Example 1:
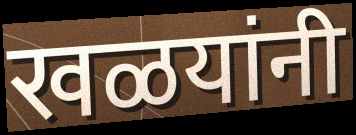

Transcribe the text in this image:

खळयांनी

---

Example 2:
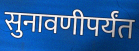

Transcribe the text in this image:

सुनावणीपर्यंत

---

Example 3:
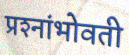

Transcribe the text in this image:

प्रश्नांभोवती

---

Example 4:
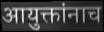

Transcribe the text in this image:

आयुक्तांनाच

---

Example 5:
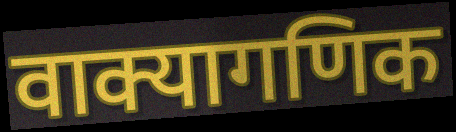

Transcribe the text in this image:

वाक्यागणिक